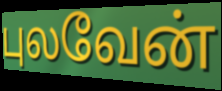
புலவேன்